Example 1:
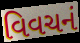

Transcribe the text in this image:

વિવચનં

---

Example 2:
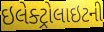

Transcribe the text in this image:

ઇલેક્ટ્રોલાઇટની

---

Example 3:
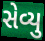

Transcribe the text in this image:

સેવ્યુ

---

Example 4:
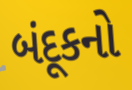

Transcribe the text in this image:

બંદૂકનો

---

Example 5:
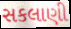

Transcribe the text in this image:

સકલાણી